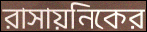
রাসায়নিকের